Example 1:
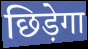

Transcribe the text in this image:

छिड़ेगा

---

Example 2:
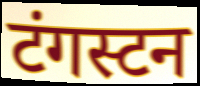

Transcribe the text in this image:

टंगस्टन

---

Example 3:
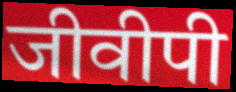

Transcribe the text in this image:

जीवीपी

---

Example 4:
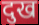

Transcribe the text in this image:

दुख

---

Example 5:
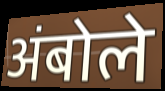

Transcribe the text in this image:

अंबोले